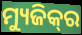
ମ୍ୟୁଜିକ୍‌ର